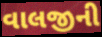
વાલજીની